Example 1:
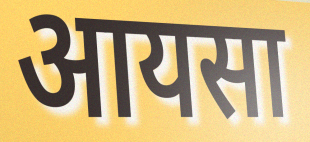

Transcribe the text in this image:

आयसा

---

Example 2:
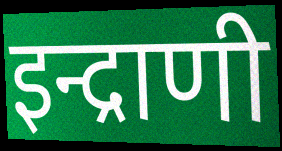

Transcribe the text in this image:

इन्द्राणी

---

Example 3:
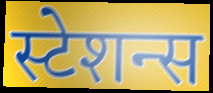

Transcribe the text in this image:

स्टेशन्स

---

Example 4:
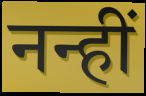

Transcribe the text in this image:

नन्‍हीं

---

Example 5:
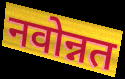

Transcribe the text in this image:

नवोन्नत